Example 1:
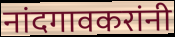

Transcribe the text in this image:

नांदगावकरांनी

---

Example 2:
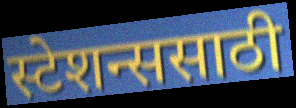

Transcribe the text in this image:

स्टेशन्ससाठी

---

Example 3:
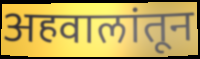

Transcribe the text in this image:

अहवालांतून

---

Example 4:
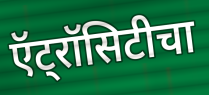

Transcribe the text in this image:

ऍट्रॉसिटीचा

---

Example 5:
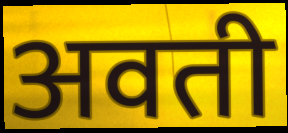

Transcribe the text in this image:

अवती